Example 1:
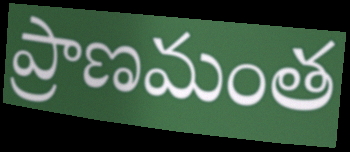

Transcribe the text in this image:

ప్రాణమంత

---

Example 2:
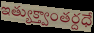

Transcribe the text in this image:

ఇత్యుక్త్వాంతర్దధే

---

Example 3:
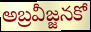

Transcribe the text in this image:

అబ్రవీజ్జనకో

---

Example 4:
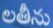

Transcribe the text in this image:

లతీను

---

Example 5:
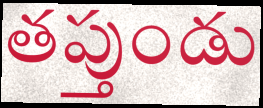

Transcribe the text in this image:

తప్తుండు